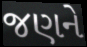
જણને